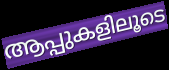
ആപ്പുകളിലൂടെ